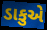
ડાકુએ